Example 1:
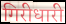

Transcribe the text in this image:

गिरीधारी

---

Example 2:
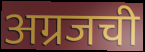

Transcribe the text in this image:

अग्रजची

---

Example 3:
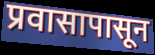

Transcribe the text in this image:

प्रवासापासून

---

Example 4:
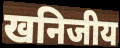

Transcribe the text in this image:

खनिजीय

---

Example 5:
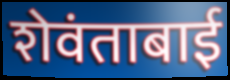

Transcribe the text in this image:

शेवंताबाई